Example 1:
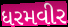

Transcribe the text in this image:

ધરમવીર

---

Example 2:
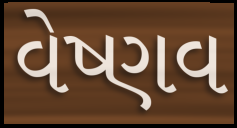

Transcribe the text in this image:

વેષ્ણવ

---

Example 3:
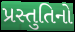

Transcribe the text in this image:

પ્રસ્તુતિનો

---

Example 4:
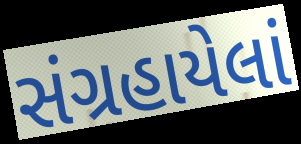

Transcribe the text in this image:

સંગ્રહાયેલાં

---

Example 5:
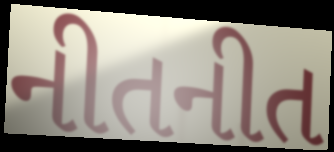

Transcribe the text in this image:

નીતનીત